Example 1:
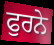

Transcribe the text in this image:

ਫੁਰਨੇ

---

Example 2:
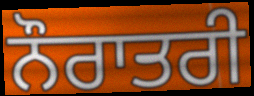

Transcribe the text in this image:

ਨੌਰਾਤਰੀ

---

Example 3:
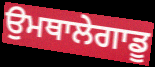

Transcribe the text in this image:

ਉਮਥਾਲੇਗਾਡੂ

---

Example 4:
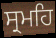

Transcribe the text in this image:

ਸ੍ਰਮਹਿ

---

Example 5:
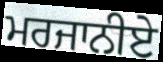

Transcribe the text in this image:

ਮਰਜਾਨੀਏ